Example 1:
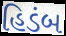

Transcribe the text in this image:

હિડંબ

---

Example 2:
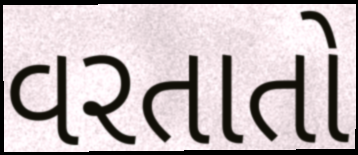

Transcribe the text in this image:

વરતાતો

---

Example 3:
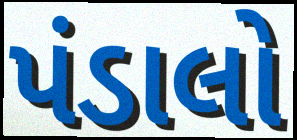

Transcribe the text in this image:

પંડાલો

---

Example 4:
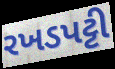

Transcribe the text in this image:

રખડપટ્ટી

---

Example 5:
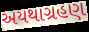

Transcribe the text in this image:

અયથાગ્રહણ